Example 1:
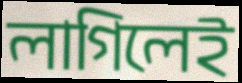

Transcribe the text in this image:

লাগিলেই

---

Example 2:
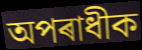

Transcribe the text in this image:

অপৰাধীক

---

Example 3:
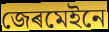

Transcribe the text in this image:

জেৰমেইনে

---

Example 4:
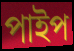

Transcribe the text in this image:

পাইপ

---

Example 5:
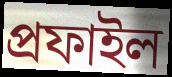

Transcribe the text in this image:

প্ৰফাইল